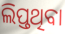
ଲିପ୍ତଥିବା